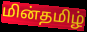
மின்தமிழ்